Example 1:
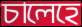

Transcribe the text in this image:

চালেহে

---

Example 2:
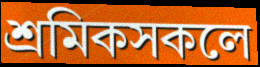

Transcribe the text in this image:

শ্ৰমিকসকলে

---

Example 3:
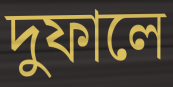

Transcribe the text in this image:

দুফালে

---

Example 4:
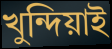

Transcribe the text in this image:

খুন্দিয়াই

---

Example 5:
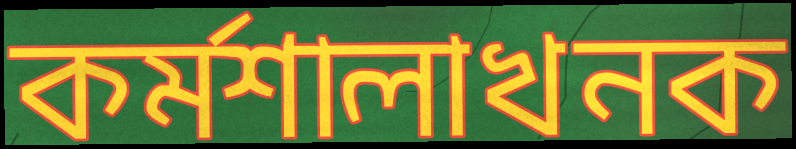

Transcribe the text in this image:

কৰ্মশালাখনক